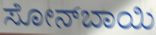
ಸೋನ್‍ಬಾಯಿ